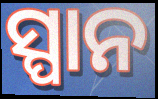
ସ୍ପାନ